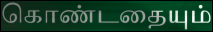
கொண்டதையும்